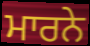
ਮਾਰਨੇ